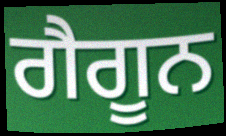
ਗੈਗੂਨ